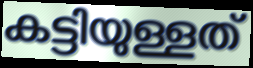
കട്ടിയുള്ളത്